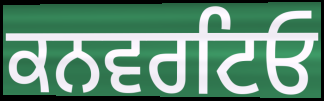
ਕਨਵਰਟਿਓ